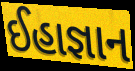
ઈહાજ્ઞાન